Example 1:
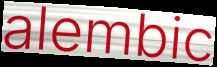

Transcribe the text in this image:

alembic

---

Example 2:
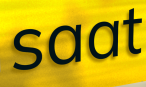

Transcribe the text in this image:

saat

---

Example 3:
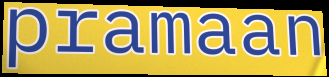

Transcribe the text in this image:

pramaan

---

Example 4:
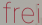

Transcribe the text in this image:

frei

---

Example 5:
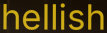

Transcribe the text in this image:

hellish